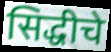
सिद्धीचे